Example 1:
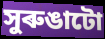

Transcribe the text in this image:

সুৰুঙাটো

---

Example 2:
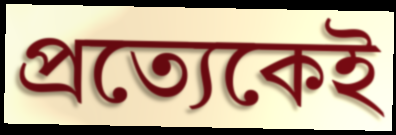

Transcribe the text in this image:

প্ৰত্যেকেই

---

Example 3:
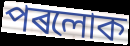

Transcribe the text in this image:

পৰলোক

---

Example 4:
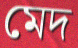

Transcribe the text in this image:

মেদ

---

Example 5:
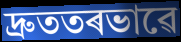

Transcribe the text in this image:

দ্ৰুততৰভাৱে